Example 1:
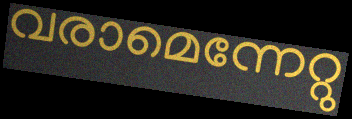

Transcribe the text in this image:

വരാമെന്നേറ്റു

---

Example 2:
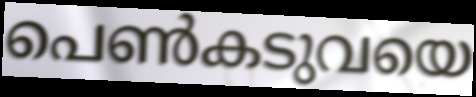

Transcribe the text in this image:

പെൺകടുവയെ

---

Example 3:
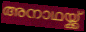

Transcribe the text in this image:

അനാഥയ്ക്ക്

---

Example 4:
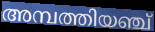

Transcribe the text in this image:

അമ്പത്തിയഞ്ച്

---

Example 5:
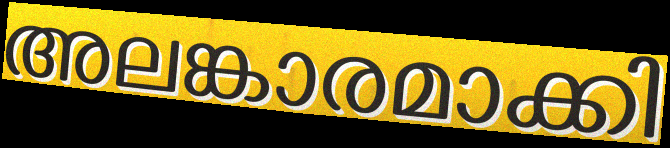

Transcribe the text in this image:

അലങ്കാരമാക്കി